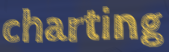
charting